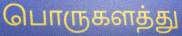
பொருகளத்து